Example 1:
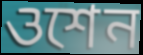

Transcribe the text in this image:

ওশেন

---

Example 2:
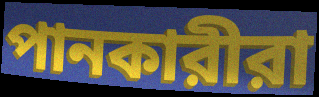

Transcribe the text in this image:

পানকারীরা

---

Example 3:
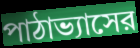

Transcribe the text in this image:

পাঠাভ্যাসের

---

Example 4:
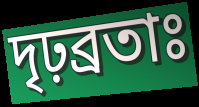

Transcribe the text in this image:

দৃঢ়ব্রতাঃ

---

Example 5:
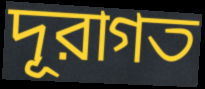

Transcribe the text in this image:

দূরাগত